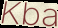
Kba